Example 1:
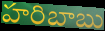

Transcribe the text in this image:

హరిబాబు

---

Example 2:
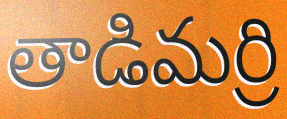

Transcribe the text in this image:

తాడిమర్రి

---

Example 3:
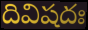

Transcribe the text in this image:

దివిషదః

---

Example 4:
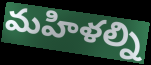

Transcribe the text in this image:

మహిళల్ని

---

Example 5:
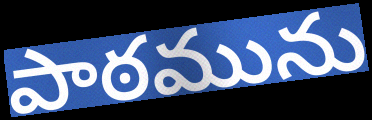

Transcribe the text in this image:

పాఠమును